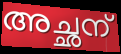
അച്ഛന്